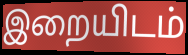
இறையிடம்